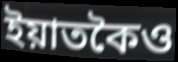
ইয়াতকৈও